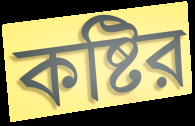
কষ্টির